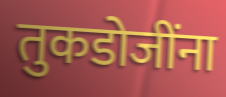
तुकडोजींना